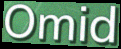
Omid